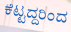
ಕೆಟ್ಟದ್ದರಿಂದ